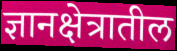
ज्ञानक्षेत्रातील